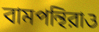
বামপন্থিরাও